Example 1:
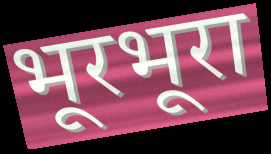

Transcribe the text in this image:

भूरभूरा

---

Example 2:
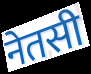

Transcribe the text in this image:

नेतसी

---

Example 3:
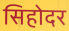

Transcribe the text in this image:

सिहोदर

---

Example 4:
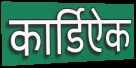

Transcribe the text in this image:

कार्डिऐक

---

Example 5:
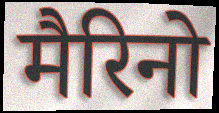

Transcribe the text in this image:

मैरिनो